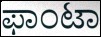
ಫಾಂಟಾ